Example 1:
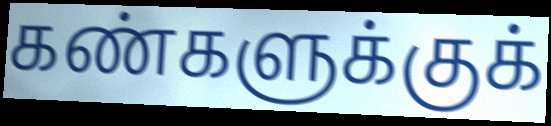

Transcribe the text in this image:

கண்களுக்குக்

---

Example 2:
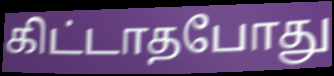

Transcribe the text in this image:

கிட்டாதபோது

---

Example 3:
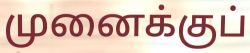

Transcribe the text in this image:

முனைக்குப்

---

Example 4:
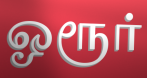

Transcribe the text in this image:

ஓரூர்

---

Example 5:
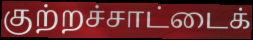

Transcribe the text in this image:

குற்றச்சாட்டைக்